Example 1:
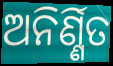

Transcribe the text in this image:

ଅନିର୍ଣ୍ଣିତ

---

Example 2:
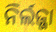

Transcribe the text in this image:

ନିର୍ଲଜ୍ଜା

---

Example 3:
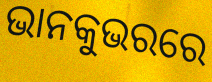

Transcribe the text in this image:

ଭାନକୁଭରରେ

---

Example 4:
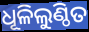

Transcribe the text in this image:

ଧୂଳିଲୁଣ୍ଠିତ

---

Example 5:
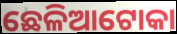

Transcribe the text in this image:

ଛେଳିଆଟୋକା